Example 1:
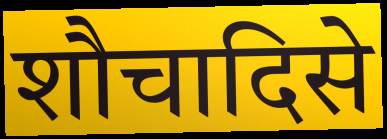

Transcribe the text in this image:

शौचादिसे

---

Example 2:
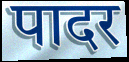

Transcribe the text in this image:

पादर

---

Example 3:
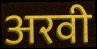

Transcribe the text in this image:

अरवी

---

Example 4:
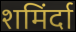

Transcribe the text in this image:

शमिंर्दा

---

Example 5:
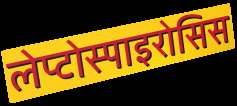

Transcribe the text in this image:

लेप्टोस्पाइरोसिस